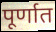
पूर्णात